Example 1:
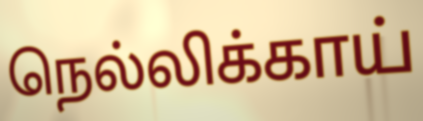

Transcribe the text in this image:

நெல்லிக்காய்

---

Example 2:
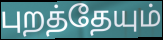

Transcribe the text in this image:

புறத்தேயும்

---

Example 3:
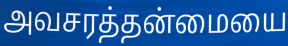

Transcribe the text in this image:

அவசரத்தன்மையை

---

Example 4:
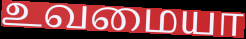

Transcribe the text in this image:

உவமையா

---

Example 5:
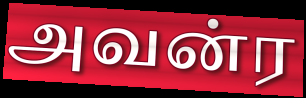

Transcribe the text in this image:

அவன்ர